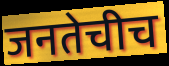
जनतेचीच